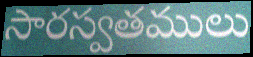
సారస్వతములు